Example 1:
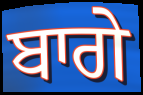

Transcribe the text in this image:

ਬਾਗੇ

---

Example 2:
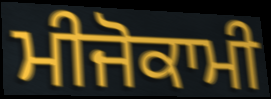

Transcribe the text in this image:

ਮੀਜੋਕਾਮੀ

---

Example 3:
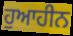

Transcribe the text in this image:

ਹੁਆਹੀਨ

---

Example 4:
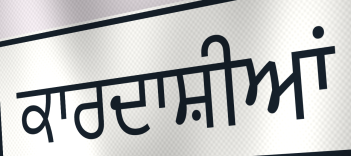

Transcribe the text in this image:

ਕਾਰਦਾਸ਼ੀਆਂ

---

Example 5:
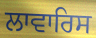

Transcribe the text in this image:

ਲਾਵਾਰਿਸ